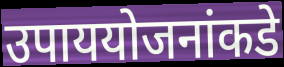
उपाययोजनांकडे